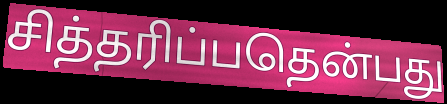
சித்தரிப்பதென்பது